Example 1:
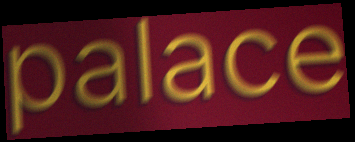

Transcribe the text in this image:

palace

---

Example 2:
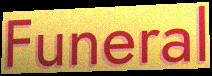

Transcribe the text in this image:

Funeral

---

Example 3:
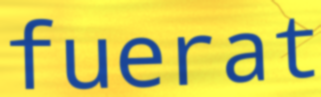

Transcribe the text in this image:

fuerat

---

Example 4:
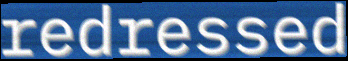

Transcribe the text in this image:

redressed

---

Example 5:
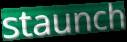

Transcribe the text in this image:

staunch